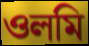
ওলমি